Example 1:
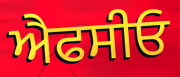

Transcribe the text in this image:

ਐਫਸੀਓ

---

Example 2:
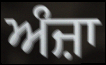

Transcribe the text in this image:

ਅੰਜ਼ਾ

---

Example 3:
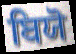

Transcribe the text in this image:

ਬਿਯੋ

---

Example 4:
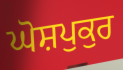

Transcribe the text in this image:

ਘੋਸ਼ਪੁਕੁਰ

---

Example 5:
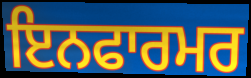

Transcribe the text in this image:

ਇਨਫਾਰਮਰ